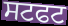
ਸਟਫਟ